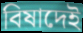
বিষাদেই